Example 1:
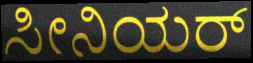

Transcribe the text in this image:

ಸೀನಿಯರ್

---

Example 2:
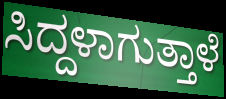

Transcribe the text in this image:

ಸಿದ್ದಳಾಗುತ್ತಾಳೆ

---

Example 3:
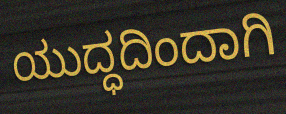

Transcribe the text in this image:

ಯುದ್ಧದಿಂದಾಗಿ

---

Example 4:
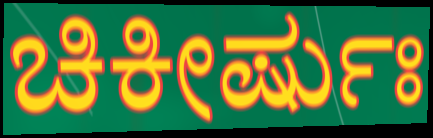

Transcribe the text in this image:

ಚಿಕೀರ್ಷುಃ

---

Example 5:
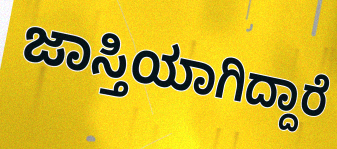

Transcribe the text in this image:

ಜಾಸ್ತಿಯಾಗಿದ್ದಾರೆ